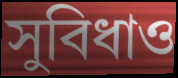
সুবিধাও